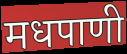
मधपाणी